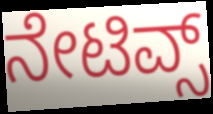
ನೇಟಿವ್ಸ್